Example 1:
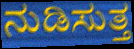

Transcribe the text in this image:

ನುಡಿಸುತ್ತ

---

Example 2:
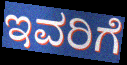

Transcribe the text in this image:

ಇವರಿಗೆ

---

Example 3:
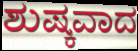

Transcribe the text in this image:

ಶುಷ್ಕವಾದ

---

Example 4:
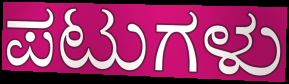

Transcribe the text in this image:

ಪಟುಗಳು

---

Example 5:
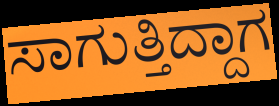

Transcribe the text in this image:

ಸಾಗುತ್ತಿದ್ದಾಗ